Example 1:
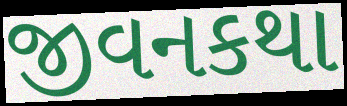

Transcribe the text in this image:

જીવનકથા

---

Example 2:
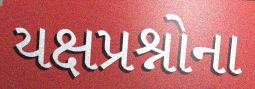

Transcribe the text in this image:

યક્ષપ્રશ્નોના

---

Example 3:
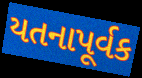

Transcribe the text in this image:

યતનાપૂર્વક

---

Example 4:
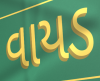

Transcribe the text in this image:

વાયડ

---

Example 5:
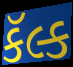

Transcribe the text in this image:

કૅલ્ક